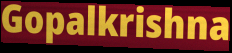
Gopalkrishna